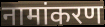
नामांकरण